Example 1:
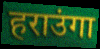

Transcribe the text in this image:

हराउंगा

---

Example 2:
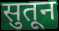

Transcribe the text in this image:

सुतून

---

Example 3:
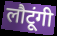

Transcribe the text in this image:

लौटूंगी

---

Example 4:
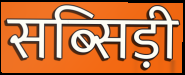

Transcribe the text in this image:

सब्सिड़ी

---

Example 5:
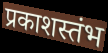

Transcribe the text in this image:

प्रकाशस्तंभ